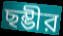
ছম্ভীর